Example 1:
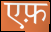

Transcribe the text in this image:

एफ़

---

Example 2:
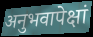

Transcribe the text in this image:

अनुभवापेक्षां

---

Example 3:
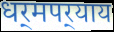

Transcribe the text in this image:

धर्मपर्याय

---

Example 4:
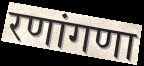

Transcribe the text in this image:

रणांगणा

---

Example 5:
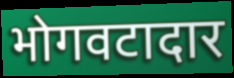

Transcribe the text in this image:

भोगवटादार